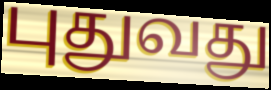
புதுவது